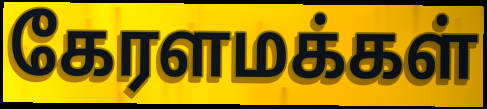
கேரளமக்கள்